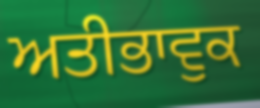
ਅਤੀਭਾਵੁਕ